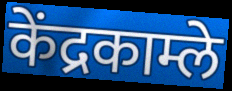
केंद्रकाम्ले